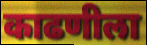
काढणीला